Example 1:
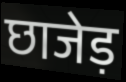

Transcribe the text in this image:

छाजेड़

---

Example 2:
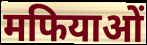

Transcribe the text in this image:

मफियाओं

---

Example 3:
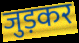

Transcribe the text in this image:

जुड़कर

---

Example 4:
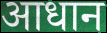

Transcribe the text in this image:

आधान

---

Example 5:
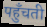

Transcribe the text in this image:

पहुँचती